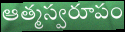
ఆత్మస్వరూపం